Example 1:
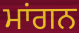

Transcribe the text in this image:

ਮਾਂਗਨ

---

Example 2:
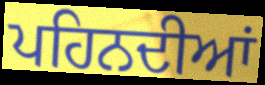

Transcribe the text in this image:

ਪਹਿਨਦੀਆਂ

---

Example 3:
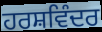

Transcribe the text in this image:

ਹਰਸ਼ਵਿੰਦਰ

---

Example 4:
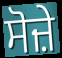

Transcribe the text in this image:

ਸੋਜ਼ੇ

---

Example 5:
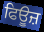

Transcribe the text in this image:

ਫਿਊਜ਼